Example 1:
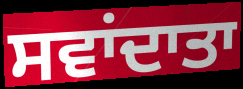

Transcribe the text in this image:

ਸਵਾਂਦਾਤਾ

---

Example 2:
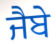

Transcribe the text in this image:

ਜੈਬੇ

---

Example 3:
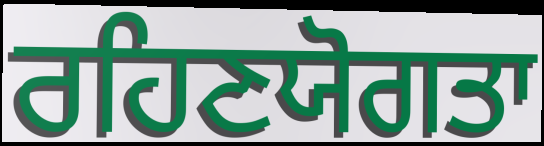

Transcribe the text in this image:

ਰਹਿਣਯੋਗਤਾ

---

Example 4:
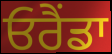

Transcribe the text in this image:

ਓਰੈਂਡਾ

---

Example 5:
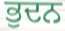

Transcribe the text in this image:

ਭੁਦਨ